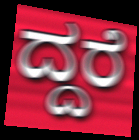
ದ್ದರೆ